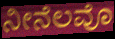
ನೀನೆಲವೊ